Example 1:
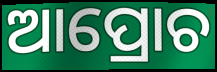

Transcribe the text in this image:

ଆପ୍ରୋଚ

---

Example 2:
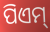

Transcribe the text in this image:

ପିଏମ୍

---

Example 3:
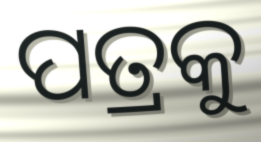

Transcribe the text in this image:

ପତ୍ରକୁ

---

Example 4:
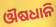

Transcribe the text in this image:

ଔଷଧାନି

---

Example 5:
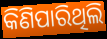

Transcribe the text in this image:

କିଣିପାରିଥିଲି